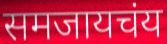
समजायचंय